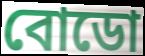
বোডো